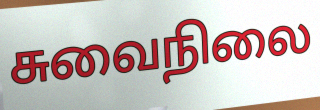
சுவைநிலை